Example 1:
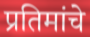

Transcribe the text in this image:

प्रतिमांचे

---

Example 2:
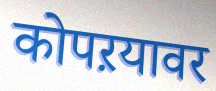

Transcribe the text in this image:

कोपऱयावर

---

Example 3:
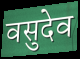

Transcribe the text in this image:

वसुदेव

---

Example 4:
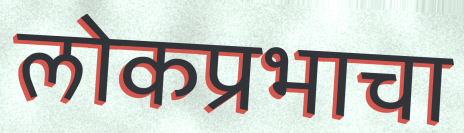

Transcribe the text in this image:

लोकप्रभाचा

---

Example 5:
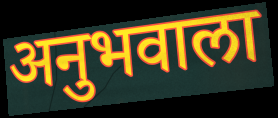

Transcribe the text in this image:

अनुभवाला